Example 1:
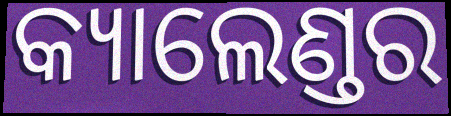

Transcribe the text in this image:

କ୍ୟାଲେଣ୍ଡର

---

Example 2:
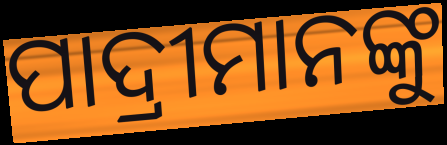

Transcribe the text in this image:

ପାଦ୍ରୀମାନଙ୍କୁ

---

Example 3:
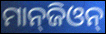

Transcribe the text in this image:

ମାନ୍‌ଜିଓନ୍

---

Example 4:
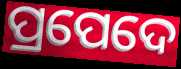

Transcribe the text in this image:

ପ୍ରପେଦେ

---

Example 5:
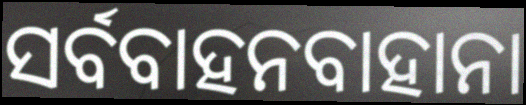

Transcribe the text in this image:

ସର୍ବବାହନବାହାନା